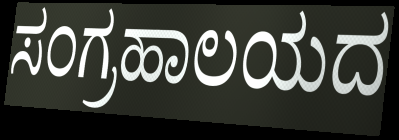
ಸಂಗ್ರಹಾಲಯದ